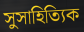
সুসাহিত্যিক